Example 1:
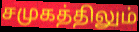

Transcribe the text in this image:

சமுகத்திலும்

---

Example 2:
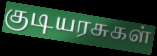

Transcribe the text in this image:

குடியரசுகள்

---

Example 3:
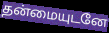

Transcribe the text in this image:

தன்மையுடனே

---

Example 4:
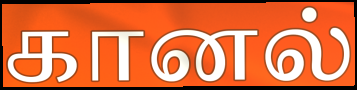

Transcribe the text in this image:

கானல்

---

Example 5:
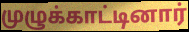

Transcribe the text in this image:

முழுக்காட்டினார்